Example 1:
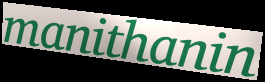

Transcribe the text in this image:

manithanin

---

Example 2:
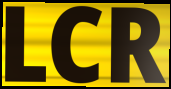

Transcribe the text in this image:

LCR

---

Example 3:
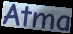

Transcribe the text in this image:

Atma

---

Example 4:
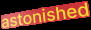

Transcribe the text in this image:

astonished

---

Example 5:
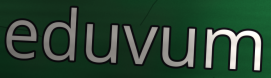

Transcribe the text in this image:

eduvum